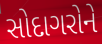
સોદાગરોને